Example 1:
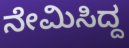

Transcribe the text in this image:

ನೇಮಿಸಿದ್ದ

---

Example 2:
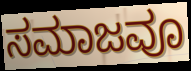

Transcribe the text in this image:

ಸಮಾಜವೂ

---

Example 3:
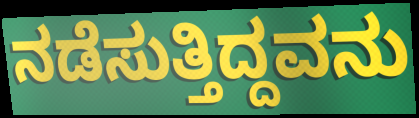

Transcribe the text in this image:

ನಡೆಸುತ್ತಿದ್ದವನು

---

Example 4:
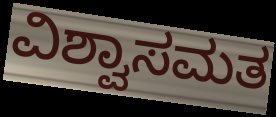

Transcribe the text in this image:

ವಿಶ್ವಾಸಮತ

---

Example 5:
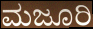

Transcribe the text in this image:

ಮಜೂರಿ